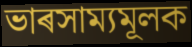
ভাৰসাম্যমূলক